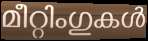
മീറ്റിംഗുകൾ